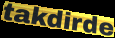
takdirde